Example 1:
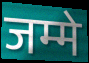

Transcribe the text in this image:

जम्मे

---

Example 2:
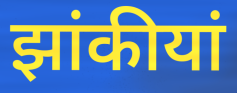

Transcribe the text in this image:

झांकीयां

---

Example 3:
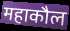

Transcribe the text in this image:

महाकौल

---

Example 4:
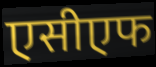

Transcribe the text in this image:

एसीएफ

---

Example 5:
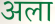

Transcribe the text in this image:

अला